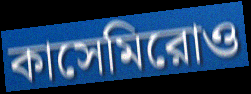
কাসেমিরোও